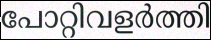
പോറ്റിവളർത്തി